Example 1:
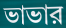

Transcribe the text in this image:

ভাভার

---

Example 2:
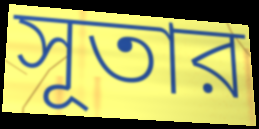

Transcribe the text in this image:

সূতার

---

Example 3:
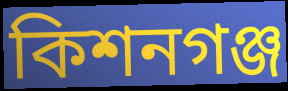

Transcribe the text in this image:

কিশনগঞ্জ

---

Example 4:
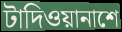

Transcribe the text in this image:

টাদিওয়ানাশে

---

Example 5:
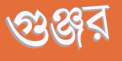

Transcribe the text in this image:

গুঞ্জর